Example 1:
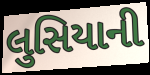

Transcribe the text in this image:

લુસિયાની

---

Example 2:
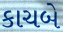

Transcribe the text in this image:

કાચબે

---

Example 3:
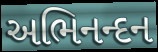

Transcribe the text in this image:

અભિનન્દન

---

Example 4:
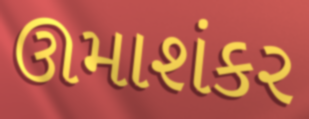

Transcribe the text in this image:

ઊમાશંકર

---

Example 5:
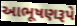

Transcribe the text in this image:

આભૂષણરૂપે